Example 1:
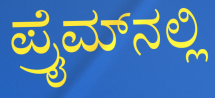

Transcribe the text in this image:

ಪ್ರೈಮ್‌ನಲ್ಲಿ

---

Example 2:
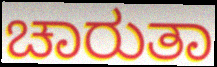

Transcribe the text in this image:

ಚಾರುತಾ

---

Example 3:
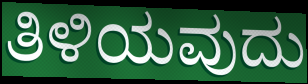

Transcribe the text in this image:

ತಿಳಿಯವುದು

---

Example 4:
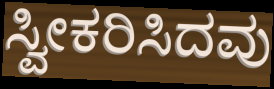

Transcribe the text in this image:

ಸ್ವೀಕರಿಸಿದವು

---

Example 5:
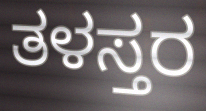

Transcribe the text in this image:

ತಳಸ್ತರ